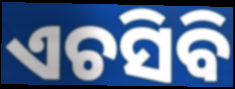
ଏଚସିବି